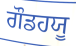
ਗੌਡਹਯੂ